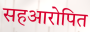
सहआरोपित